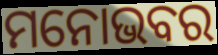
ମନୋଭବର